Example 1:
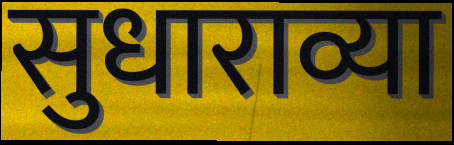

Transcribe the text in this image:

सुधाराव्या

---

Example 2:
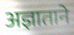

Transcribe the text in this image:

अज्ञाताने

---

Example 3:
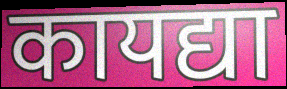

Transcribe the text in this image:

कायद्या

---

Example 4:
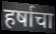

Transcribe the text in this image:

हर्षाचा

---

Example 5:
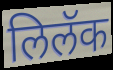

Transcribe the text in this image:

लिलॅक